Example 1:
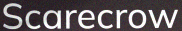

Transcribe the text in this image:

Scarecrow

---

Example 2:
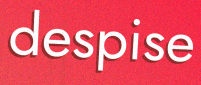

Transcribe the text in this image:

despise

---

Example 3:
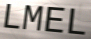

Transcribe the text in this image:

LMEL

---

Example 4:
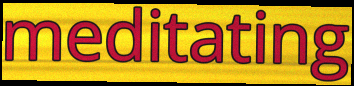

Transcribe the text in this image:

meditating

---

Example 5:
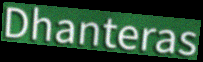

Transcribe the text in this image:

Dhanteras